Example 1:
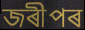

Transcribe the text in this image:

জৰীপৰ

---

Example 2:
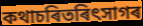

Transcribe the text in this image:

কথাচৰিতৰিৎসাগৰ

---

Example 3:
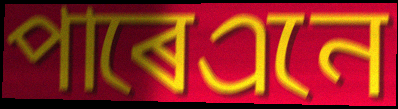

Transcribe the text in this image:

পাৰেএনে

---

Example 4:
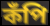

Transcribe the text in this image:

কঁপি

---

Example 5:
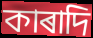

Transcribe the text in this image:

কাৰাদি